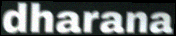
dharana